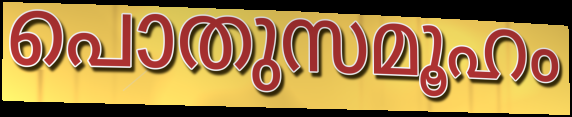
പൊതുസമൂഹം